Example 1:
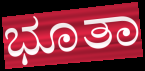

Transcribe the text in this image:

ಭೂತಾ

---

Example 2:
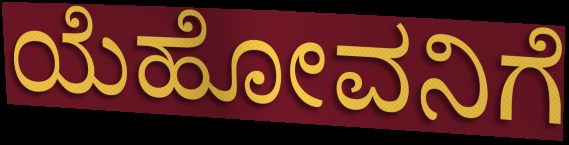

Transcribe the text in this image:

ಯೆಹೋವನಿಗೆ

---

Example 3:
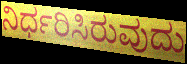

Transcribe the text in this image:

ನಿರ್ಧರಿಸಿರುವುದು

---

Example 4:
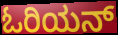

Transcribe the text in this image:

ಓರಿಯನ್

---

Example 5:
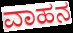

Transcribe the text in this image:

ವಾಹನ